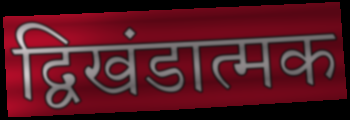
द्विखंडात्मक